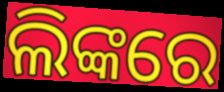
ଲିଙ୍କରେ